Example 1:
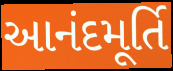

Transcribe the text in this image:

આનંદમૂર્તિ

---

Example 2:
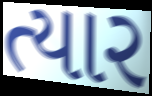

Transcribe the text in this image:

ત્‍યાર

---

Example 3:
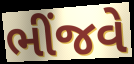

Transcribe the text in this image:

ભીંજવે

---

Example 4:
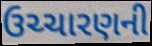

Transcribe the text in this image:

ઉચ્ચારણની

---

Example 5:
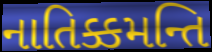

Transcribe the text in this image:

નાતિક્કમન્તિ